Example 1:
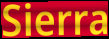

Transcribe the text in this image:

Sierra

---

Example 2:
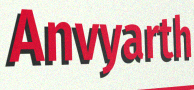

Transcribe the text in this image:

Anvyarth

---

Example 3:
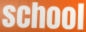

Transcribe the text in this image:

school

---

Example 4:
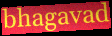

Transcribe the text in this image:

bhagavad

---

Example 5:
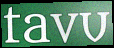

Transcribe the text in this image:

tavu